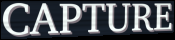
CAPTURE